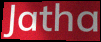
Jatha